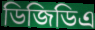
ডিজিডিএ